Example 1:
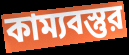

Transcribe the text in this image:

কাম্যবস্তুর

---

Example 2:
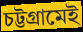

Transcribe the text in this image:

চট্টগ্রামেই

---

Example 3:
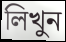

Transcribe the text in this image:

লিখুন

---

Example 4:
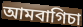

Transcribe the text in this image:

আমবাগিচা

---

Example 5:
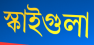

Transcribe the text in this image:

স্কাইগুলা